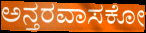
ಅನ್ತರವಾಸಕೋ